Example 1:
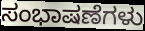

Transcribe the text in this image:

ಸಂಭಾಷಣೆಗಳು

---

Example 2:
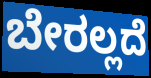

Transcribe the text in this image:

ಬೇರಲ್ಲದೆ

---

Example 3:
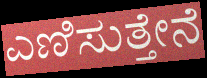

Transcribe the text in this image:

ಎಣಿಸುತ್ತೇನೆ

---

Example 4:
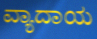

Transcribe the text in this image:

ವ್ಯಾದಾಯ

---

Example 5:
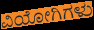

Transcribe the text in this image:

ವಿಯೋಗಿಗಳು